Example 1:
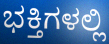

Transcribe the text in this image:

ಭಕ್ತಿಗಳಲ್ಲಿ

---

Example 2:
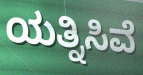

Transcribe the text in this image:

ಯತ್ನಿಸಿವೆ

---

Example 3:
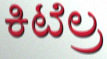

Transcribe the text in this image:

ಕಿಟೆಲ್ರ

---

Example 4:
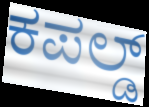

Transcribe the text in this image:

ಕಪಲ್ಡ್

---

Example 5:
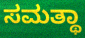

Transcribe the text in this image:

ಸಮತ್ಥಾ